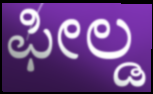
ಫೀಲ್ಡ